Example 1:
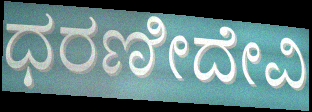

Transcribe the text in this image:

ಧರಣೀದೇವಿ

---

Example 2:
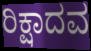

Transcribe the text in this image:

ರಿಕ್ಷಾದವ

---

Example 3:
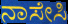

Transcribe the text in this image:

ನಾಸೇಸಿ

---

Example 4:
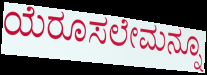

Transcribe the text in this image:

ಯೆರೂಸಲೇಮನ್ನೂ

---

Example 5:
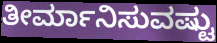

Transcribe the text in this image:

ತೀರ್ಮಾನಿಸುವಷ್ಟು